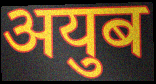
अयुब